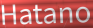
Hatano